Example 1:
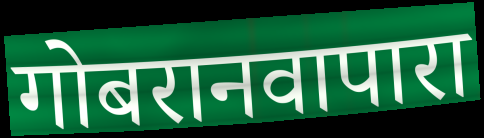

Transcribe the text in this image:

गोबरानवापारा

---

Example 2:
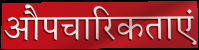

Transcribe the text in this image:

औपचारिकताएं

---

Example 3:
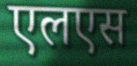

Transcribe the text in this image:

एलएस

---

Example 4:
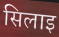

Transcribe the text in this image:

सिलाइ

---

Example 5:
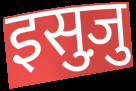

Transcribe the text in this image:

इसुज़ु